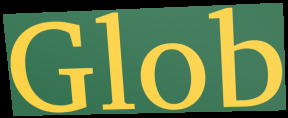
Glob